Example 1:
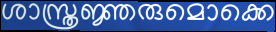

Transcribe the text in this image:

ശാസ്ത്രജ്ഞരുമൊക്കെ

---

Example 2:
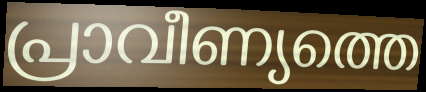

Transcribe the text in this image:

പ്രാവീണ്യത്തെ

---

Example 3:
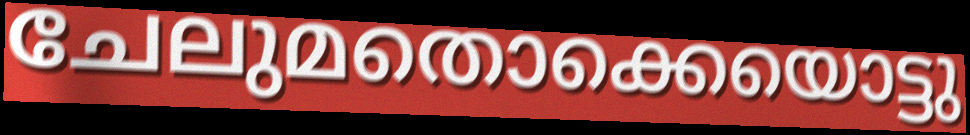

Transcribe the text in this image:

ചേലുമതൊക്കെയൊട്ടു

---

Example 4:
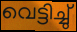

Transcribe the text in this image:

വെട്ടിച്ചു്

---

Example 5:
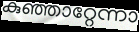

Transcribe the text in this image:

കുഞ്ഞാറ്റേന്നാ